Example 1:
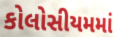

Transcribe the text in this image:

કોલોસીયમમાં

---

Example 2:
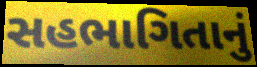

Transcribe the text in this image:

સહભાગિતાનું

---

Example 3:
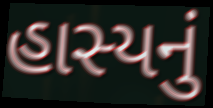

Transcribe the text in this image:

હાસ્યનું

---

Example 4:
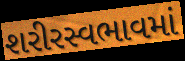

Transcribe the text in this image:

શરીરસ્વભાવમાં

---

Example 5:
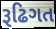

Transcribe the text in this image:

રૂઢિગત